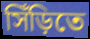
সিঁড়িতে